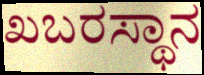
ಖಬರಸ್ಥಾನ